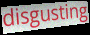
disgusting